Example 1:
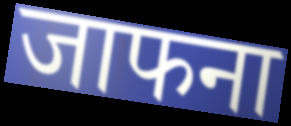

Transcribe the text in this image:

जाफना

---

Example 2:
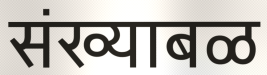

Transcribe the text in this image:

संख्याबळ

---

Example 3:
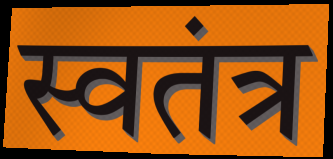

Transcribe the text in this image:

स्‍वतंत्र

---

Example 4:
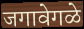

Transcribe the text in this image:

जगावेगळे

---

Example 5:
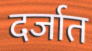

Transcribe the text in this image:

दर्जात